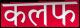
कलफ